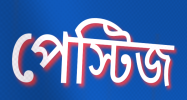
পেস্টিজ